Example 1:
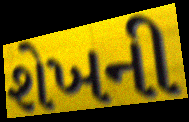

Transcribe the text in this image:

શેખની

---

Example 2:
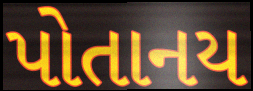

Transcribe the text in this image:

પોતાનય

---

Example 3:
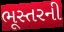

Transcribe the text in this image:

ભૂસ્તરની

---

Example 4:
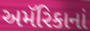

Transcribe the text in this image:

અમૅરિકાનાં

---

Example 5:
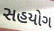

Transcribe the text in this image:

સહયોગ